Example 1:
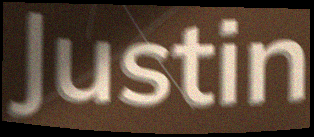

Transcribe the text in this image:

Justin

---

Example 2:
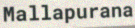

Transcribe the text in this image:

Mallapurana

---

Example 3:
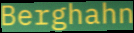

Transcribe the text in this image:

Berghahn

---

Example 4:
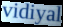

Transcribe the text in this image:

vidiyal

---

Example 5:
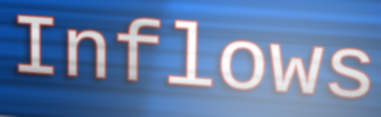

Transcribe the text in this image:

Inflows